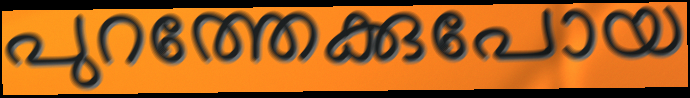
പുറത്തേക്കുപോയ